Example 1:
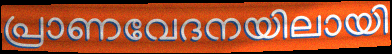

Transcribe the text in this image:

പ്രാണവേദനയിലായി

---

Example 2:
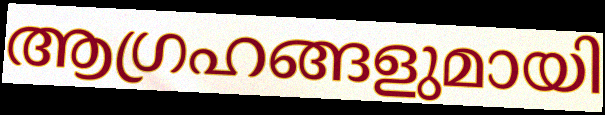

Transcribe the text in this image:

ആഗ്രഹങ്ങളുമായി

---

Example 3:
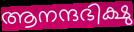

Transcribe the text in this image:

ആനന്ദഭിക്ഷു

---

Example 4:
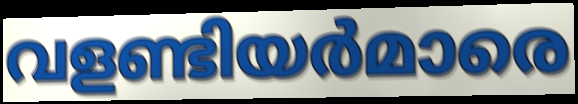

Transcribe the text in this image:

വളണ്ടിയർമാരെ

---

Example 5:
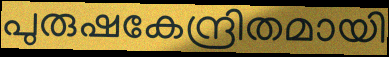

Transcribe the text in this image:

പുരുഷകേന്ദ്രിതമായി